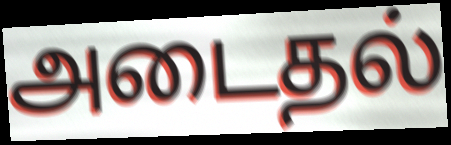
அடைதல்